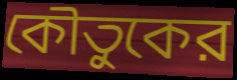
কৌতুকের